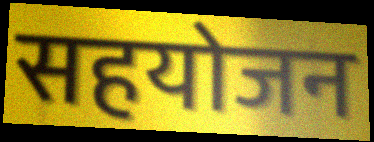
सहयोजन